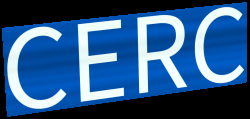
CERC